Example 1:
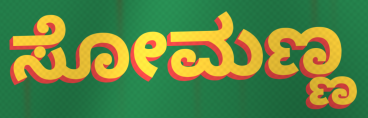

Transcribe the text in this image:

ಸೋಮಣ್ಣ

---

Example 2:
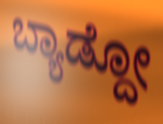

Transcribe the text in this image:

ಬ್ಯಾಡ್ದೋ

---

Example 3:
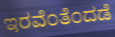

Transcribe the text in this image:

ಇರವೆಂತೆಂದಡೆ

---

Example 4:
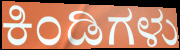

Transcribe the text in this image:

ಕಿಂಡಿಗಳು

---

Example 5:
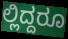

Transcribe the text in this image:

ಲ್ಲಿದ್ದರೂ